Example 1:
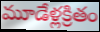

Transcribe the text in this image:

మూడేళ్లక్రితం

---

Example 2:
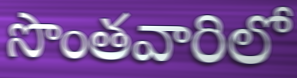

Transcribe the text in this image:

సొంతవారిలో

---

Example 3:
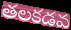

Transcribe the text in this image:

తలకడవ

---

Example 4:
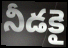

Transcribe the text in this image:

నీడకై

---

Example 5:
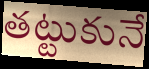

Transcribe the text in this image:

తట్టుకునే